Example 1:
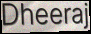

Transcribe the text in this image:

Dheeraj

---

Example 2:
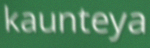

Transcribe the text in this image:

kaunteya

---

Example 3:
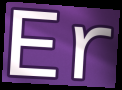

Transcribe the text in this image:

Er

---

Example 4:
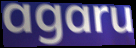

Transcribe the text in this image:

agaru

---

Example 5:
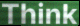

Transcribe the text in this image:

Think